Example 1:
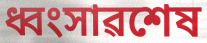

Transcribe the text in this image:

ধ্বংসাৱশেষ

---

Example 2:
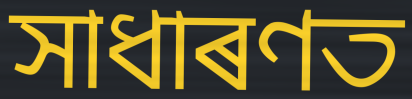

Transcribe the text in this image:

সাধাৰণত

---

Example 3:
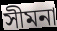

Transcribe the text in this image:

সীমনা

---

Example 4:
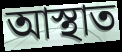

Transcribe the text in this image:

আস্থাত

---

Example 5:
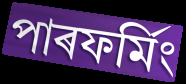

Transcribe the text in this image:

পাৰফৰ্মিং